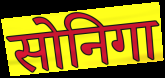
सोनिगा